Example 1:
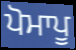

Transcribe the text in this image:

ਪੋਮਾਪੂ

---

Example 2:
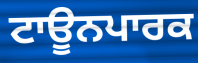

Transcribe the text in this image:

ਟਾਊਨਪਾਰਕ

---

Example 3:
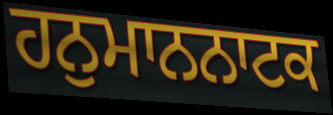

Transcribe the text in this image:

ਹਨੁਮਾਨਨਾਟਕ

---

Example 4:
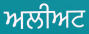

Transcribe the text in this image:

ਅਲੀਅਟ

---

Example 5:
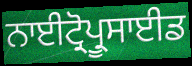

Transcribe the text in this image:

ਨਾਈਟ੍ਰੋਪ੍ਰੂਸਾਈਡ